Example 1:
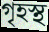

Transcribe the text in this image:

গৃহস্থ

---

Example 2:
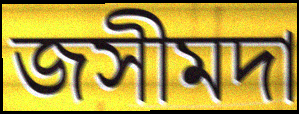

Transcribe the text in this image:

জসীমদা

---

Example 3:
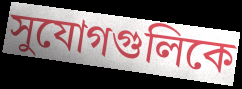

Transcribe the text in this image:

সুযোগগুলিকে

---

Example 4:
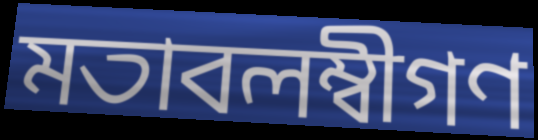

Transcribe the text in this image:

মতাবলম্বীগণ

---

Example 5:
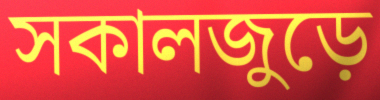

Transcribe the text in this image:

সকালজুড়ে